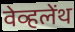
वेव्हलेंथ